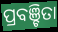
ପ୍ରବଞ୍ଚିତା